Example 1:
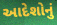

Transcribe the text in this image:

આદેશોનું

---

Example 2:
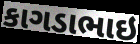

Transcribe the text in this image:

કાગડાભાઇ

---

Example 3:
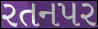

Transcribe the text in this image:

રતનપર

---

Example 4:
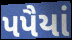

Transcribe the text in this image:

પપૈયાં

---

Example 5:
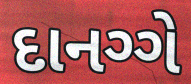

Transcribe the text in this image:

દાનગ્ગે